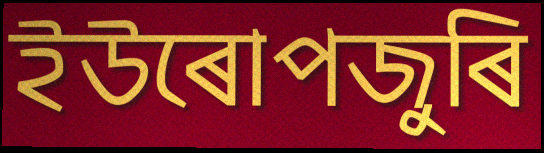
ইউৰোপজুৰি